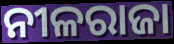
ନୀଳରାଜା